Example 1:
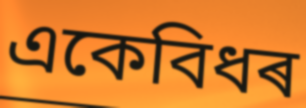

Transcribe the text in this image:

একেবিধৰ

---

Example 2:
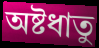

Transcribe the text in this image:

অষ্টধাতু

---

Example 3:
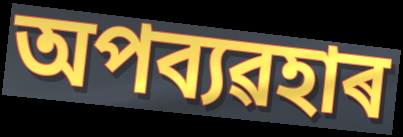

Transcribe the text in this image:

অপব্যৱহাৰ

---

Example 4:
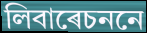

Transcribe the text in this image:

লিবাৰেচননে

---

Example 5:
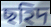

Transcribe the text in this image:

ছহিদ